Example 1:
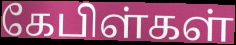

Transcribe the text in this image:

கேபிள்கள்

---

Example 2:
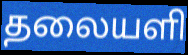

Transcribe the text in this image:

தலையளி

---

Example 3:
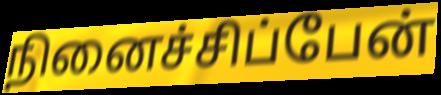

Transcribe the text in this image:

நினைச்சிப்பேன்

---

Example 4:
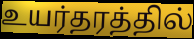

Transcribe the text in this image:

உயர்தரத்தில்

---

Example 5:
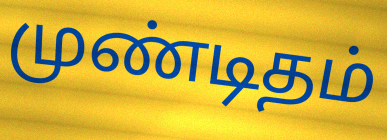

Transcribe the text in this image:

முண்டிதம்